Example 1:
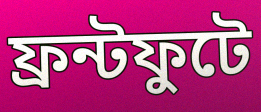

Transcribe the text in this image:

ফ্রন্টফুটে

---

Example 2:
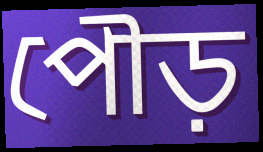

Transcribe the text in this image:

পৌড়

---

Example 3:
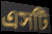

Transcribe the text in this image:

এসটি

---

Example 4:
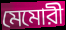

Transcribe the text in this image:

মেমোরী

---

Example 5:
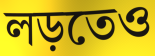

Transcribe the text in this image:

লড়তেও